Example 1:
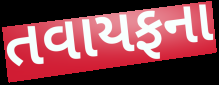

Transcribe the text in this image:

તવાયફના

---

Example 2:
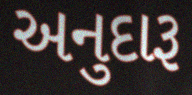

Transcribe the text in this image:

અનુદારૂ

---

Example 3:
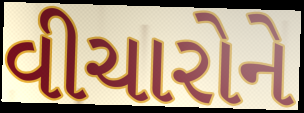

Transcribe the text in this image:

વીચારોને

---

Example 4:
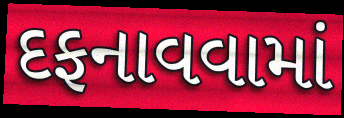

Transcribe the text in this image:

દફનાવવામાં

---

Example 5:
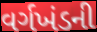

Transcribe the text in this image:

વર્ગખંડની